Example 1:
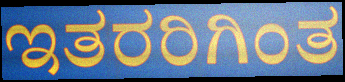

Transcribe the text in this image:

ಇತರರಿಗಿಂತ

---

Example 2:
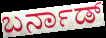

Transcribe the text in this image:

ಬರ್ನಾಡ್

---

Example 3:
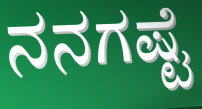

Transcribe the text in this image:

ನನಗಷ್ಟೆ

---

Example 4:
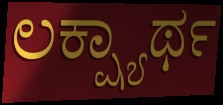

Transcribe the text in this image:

ಲಕ್ಷ್ಯಾರ್ಥ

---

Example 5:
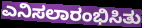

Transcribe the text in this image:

ಎನಿಸಲಾರಂಭಿಸಿತು